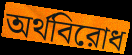
অর্থবিরোধ